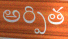
అర్పిత